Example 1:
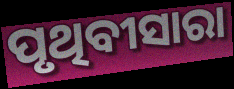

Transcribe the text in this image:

ପୃଥିବୀସାରା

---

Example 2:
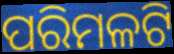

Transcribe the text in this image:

ପରିମଳଟି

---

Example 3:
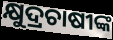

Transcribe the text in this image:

କ୍ଷୁଦ୍ରଚାଷୀଙ୍କ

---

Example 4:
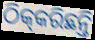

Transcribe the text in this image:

ଠିକ୍‌କରିଛନ୍ତି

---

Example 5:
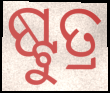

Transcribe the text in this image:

ଷ୍ଟୁତ୍ର